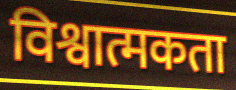
विश्वात्मकता